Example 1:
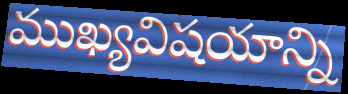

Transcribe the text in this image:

ముఖ్యవిషయాన్ని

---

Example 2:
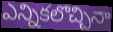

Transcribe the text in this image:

ఎన్నికలొచ్చినా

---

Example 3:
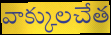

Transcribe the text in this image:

వాక్కులచేత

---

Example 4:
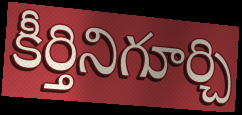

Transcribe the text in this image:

కీర్తినిగూర్చి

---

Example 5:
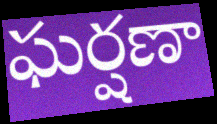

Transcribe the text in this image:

ఘర్షణా